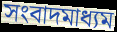
সংবাদমাধ্যম